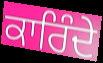
ਕਾਰਿੰਦੇ